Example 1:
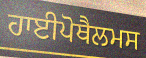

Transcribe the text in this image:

ਹਾਈਪੋਥੈਲਮਸ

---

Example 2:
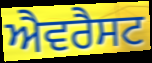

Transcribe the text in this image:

ਐਵਰੈਸਟ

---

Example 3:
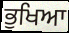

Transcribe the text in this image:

ਭੁਖਿਆ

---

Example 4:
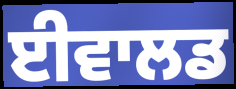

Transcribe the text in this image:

ਈਵਾਲਡ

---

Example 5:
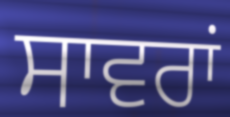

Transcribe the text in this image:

ਸਾਵਰਾਂ